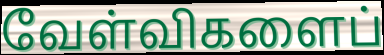
வேள்விகளைப்